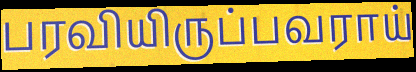
பரவியிருப்பவராய்